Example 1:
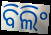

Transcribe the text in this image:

ବିଲିଂ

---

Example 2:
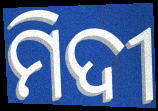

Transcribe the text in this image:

ମିଦୀ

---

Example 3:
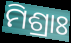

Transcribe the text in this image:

ମିଶ୍ରାଃ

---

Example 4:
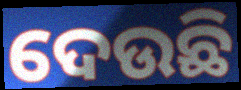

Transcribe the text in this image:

ଦେଉଛି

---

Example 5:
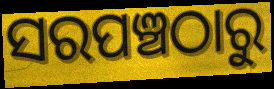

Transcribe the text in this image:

ସରପଞ୍ଚଠାରୁ